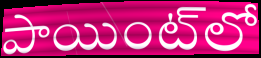
పాయింట్‌లో